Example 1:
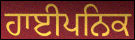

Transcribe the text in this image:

ਹਾਈਪਨਿਕ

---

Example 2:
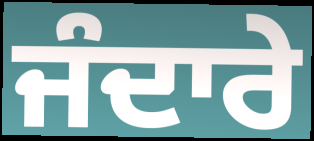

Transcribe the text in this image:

ਜੰਦਾਰੇ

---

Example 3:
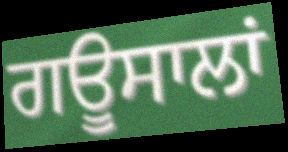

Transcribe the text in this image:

ਗਊਸਾਲਾਂ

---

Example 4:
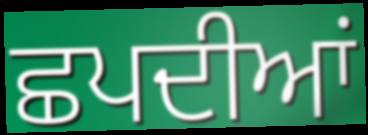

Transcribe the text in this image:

ਛਪਦੀਆਂ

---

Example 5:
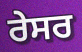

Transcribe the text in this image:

ਰੇਸਰ